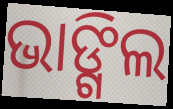
ଭାଙ୍ଗିଲ